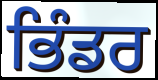
ਭਿੰਡਰ